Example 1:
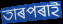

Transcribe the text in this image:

তাৰপৰাই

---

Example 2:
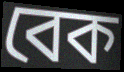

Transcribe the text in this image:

বেক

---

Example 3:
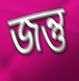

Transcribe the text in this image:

জন্তু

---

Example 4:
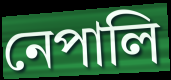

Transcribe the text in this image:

নেপালি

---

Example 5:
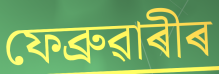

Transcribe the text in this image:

ফেব্ৰুৱাৰীৰ